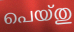
പെയ്തു